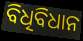
ବିଧିବିଧାନ